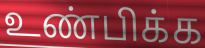
உண்பிக்க